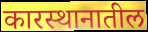
कारस्थानातील